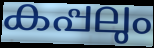
കപ്പലും